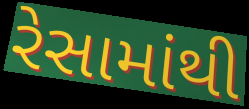
રેસામાંથી